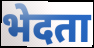
भेदता